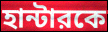
হান্টারকে